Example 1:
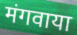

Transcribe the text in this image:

मंगवाया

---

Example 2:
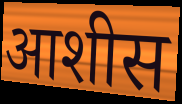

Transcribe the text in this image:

आशीस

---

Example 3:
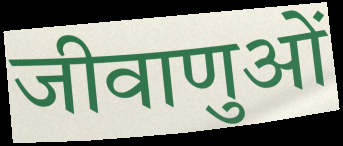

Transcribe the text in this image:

जीवाणुओं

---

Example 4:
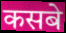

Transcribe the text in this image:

कसबे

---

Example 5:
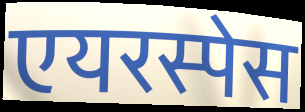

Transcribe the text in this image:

एयरस्पेस